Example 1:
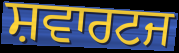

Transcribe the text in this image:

ਸ਼ਵਾਰਟਜ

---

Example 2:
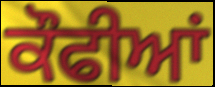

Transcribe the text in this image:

ਕੌਫੀਆਂ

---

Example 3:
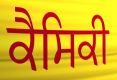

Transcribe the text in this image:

ਕੈਸਿਕੀ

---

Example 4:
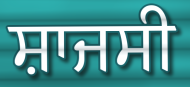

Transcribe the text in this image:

ਸ਼ਾਜਸੀ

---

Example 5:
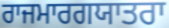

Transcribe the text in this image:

ਰਾਜਮਾਰਗਯਾਤਰਾ